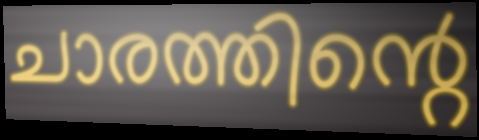
ചാരത്തിന്റെ